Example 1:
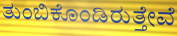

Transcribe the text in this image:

ತುಂಬಿಕೊಂಡಿರುತ್ತೇವೆ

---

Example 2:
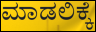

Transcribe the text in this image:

ಮಾಡಲಿಕ್ಕೆ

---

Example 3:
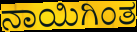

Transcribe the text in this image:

ನಾಯಿಗಿಂತ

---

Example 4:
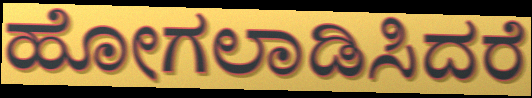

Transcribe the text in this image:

ಹೋಗಲಾಡಿಸಿದರೆ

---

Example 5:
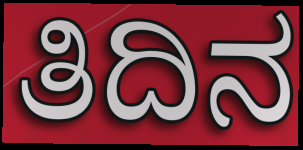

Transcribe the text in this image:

ತಿದಿನ